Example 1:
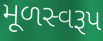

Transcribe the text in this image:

મૂળસ્વરૂપ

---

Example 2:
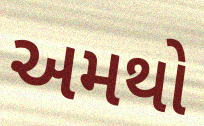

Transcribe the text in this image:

અમથો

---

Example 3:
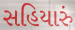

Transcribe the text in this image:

સહિયારું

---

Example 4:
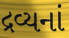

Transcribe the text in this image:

દ્રવ્યનાં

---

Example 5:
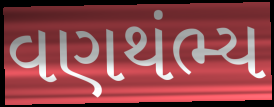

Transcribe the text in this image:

વણથંભ્ય